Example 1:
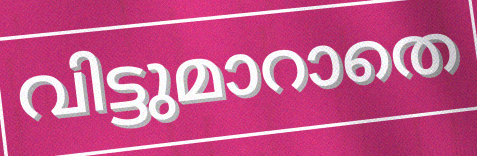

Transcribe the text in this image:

വിട്ടുമാറാതെ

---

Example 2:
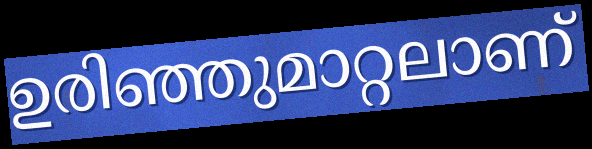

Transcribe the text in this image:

ഉരിഞ്ഞുമാറ്റലാണ്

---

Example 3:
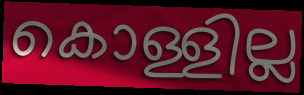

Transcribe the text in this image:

കൊള്ളില്ല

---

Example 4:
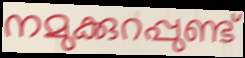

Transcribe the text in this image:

നമുക്കുറപ്പുണ്ട്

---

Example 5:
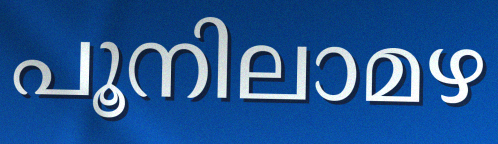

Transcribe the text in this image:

പൂനിലാമഴ